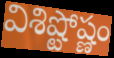
విశిష్టోష్ణం